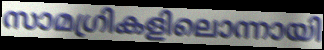
സാമഗ്രികളിലൊന്നായി